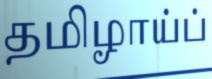
தமிழாய்ப்